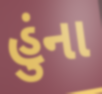
હુંના